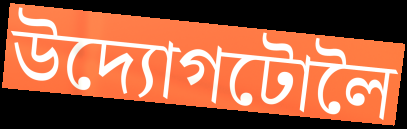
উদ্যোগটোলৈ